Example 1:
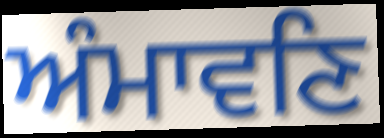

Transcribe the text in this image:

ਅੰਮਾਵਣਿ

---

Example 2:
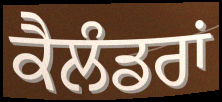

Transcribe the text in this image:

ਕੈਲੰਡਰਾਂ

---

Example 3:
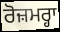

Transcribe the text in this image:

ਰੋਜ਼ਮਰ੍ਹਾ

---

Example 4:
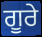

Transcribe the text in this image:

ਗੂਰੇ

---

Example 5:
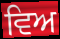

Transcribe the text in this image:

ਵਿਅ